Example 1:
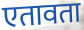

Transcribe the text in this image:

एतावता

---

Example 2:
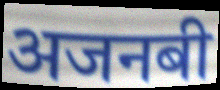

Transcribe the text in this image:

अजनबी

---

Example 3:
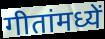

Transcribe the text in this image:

गीतांमध्यें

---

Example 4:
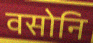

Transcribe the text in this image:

वसोनि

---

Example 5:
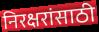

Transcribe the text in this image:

निरक्षरांसाठी